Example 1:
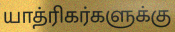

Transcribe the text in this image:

யாத்ரிகர்களுக்கு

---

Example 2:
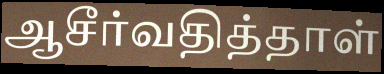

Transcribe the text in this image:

ஆசீர்வதித்தாள்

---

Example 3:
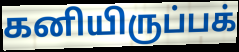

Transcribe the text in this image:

கனியிருப்பக்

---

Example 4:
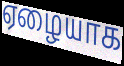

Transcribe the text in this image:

ஏழையாக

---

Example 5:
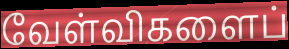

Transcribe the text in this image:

வேள்விகளைப்